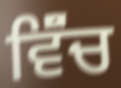
ਵਿੱੰਚ